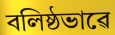
বলিষ্ঠভাৱে